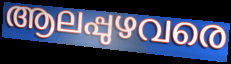
ആലപ്പുഴവരെ